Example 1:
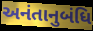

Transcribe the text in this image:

અનંતાનુબંધિ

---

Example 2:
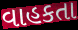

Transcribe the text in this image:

વાહકતા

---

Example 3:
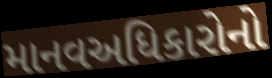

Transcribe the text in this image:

માનવઅધિકારોનો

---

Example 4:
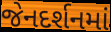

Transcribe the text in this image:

જેનદર્શનમાં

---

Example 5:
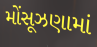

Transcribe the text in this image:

મોંસૂઝણામાં